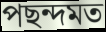
পছন্দমত